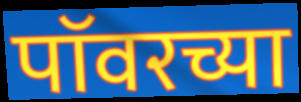
पॉवरच्या